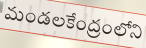
మండలకేంద్రంలోని